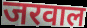
जरवाल